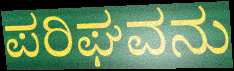
ಪರಿಘವನು